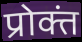
प्रोक्तं